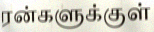
ரன்களுக்குள்